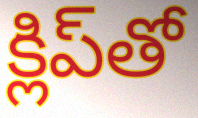
క్లిప్‌తో